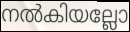
നൽകിയല്ലോ